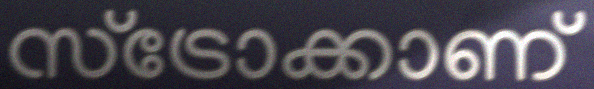
സ്ട്രോക്കാണ്